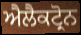
ਐਲੈਕਟ੍ਰੋਨ